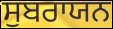
ਸੁਬਰਾਯਨ